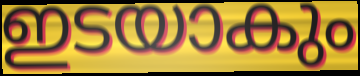
ഇടയാകും